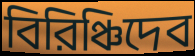
বিরিঞ্চিদেব